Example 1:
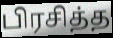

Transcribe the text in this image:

பிரசித்த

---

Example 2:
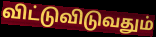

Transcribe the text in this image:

விட்டுவிடுவதும்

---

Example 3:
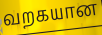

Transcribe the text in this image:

வறகயான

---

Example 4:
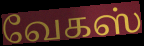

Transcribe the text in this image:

வேகஸ்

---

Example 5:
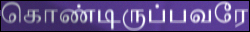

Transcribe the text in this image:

கொண்டிருப்பவரே